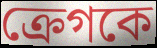
ক্রেগকে